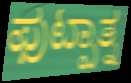
ಫುಟ್ಪಾತ್ನ